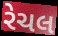
રેચલ